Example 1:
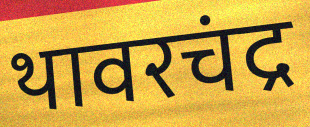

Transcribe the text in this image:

थावरचंद्र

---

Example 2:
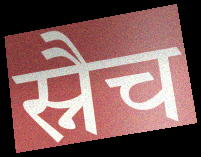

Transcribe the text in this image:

स्नैच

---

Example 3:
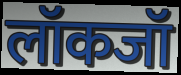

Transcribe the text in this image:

लॉकजॉ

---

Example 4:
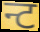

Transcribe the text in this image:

न्ट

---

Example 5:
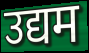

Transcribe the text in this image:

उद्यम